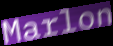
Marlon